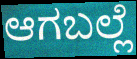
ಆಗಬಲ್ಲೆ